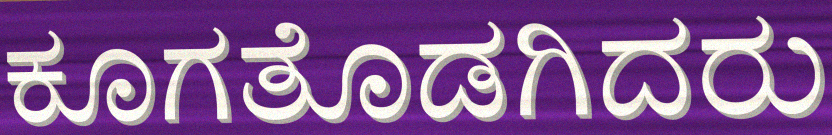
ಕೂಗತೊಡಗಿದರು